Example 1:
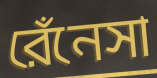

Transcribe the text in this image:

রেঁনেসা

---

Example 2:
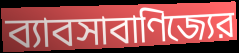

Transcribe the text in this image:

ব্যাবসাবাণিজ্যের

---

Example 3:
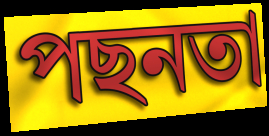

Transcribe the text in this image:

পছনতা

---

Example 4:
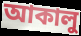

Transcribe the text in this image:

আকালু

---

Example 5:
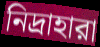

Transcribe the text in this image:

নিদ্রাহারা